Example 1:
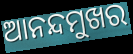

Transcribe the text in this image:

ଆନନ୍ଦମୁଖର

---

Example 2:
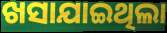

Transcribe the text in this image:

ଖସାଯାଇଥିଲା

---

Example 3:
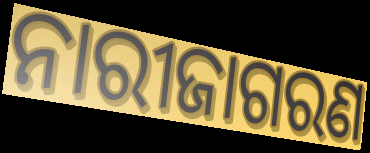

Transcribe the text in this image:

ନାରୀଜାଗରଣ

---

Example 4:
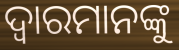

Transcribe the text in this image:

ଦ୍ୱାରମାନଙ୍କୁ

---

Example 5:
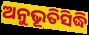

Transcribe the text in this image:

ଅନୁଭୂତିସିଦ୍ଧି